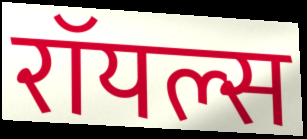
रॉयल्‍स